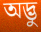
অদ্ভু